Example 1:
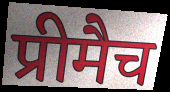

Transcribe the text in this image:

प्रीमैच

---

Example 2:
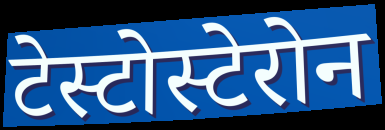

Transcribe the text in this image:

टेस्टोस्टेरोन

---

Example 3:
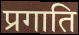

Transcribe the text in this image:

प्रगाति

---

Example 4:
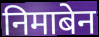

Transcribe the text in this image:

निमाबेन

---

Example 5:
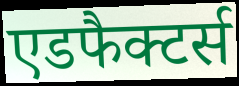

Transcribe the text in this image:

एडफैक्टर्स